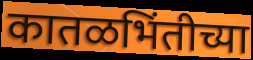
कातळभिंतीच्या